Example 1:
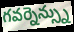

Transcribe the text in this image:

గవర్నెన్స్ను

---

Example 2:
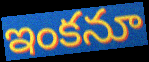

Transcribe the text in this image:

ఇంకనూ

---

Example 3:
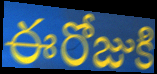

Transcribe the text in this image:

ఈరోజుకి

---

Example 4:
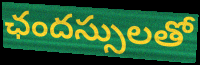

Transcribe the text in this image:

ఛందస్సులతో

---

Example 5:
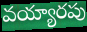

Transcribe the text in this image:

వయ్యారపు